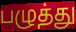
பழுத்து